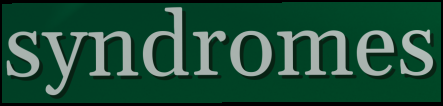
syndromes